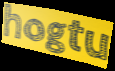
hogtu